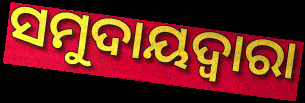
ସମୁଦାୟଦ୍ୱାରା